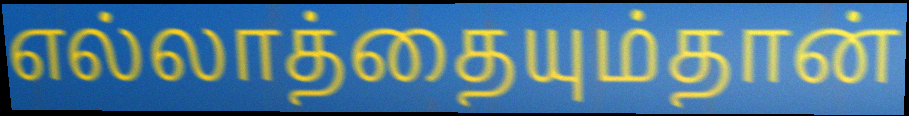
எல்லாத்தையும்தான்